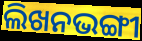
ଲିଖନଭଙ୍ଗୀ